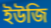
ইউজি